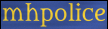
mhpolice